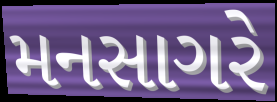
મનસાગરે